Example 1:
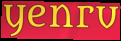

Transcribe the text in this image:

yenru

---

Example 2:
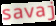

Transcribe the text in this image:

savaj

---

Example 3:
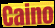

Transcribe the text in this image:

Caino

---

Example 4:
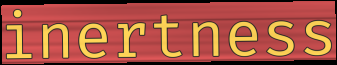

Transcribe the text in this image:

inertness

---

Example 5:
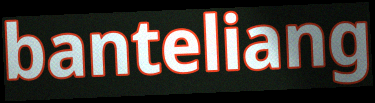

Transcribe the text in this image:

banteliang